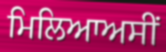
ਮਿਲਿਆਅਸੀਂ